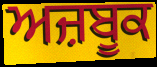
ਅਜ਼ਬੂਕ